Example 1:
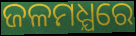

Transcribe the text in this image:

ଜଳମଧ୍ଯରେ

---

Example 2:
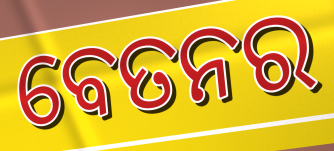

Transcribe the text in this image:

ବେତନର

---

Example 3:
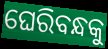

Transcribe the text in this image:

ଘେରିବନ୍ଧକୁ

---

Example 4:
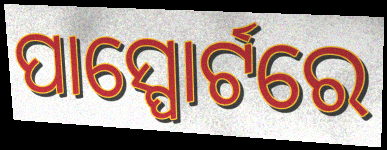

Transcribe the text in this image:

ପାସ୍ପୋର୍ଟରେ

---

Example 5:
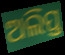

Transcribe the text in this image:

ଅଲିପ୍ତ